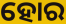
ହୋର